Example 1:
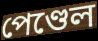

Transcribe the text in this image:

পেণ্ডেল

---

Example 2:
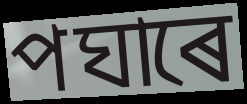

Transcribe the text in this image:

পঘাৰে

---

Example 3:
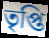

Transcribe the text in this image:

তৃপ্তি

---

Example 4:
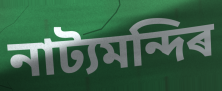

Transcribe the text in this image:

নাট্যমন্দিৰ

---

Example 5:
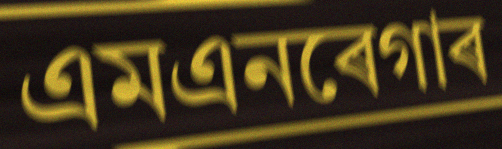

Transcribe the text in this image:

এমএনৰেগাৰ